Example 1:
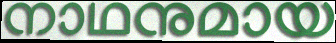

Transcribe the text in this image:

നാഥനുമായ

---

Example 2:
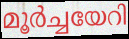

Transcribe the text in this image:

മൂർച്ചയേറി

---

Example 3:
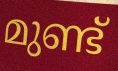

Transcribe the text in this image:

മുണ്ട്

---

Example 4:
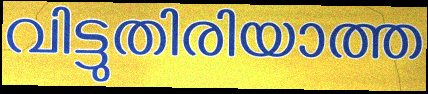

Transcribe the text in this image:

വിട്ടുതിരിയാത്ത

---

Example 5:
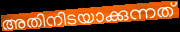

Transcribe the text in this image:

അതിനിടയാക്കുന്നത്